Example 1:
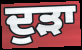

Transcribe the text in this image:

ਦੁੜਾ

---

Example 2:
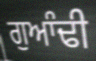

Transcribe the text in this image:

ਗੁਆੰਢੀ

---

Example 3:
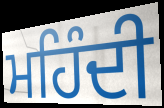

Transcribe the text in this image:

ਮਹਿੰਦੀ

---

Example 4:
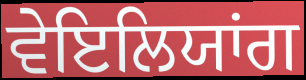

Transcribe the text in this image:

ਵੇਇਲਿਯਾਂਗ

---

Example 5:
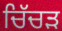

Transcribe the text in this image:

ਚਿੱਚੜ